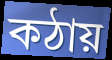
কঠায়